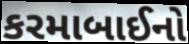
કરમાબાઈનો